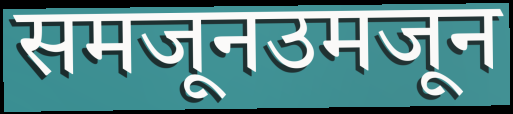
समजूनउमजून